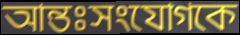
আন্তঃসংযোগকে